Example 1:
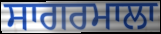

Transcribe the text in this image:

ਸਾਗਰਮਾਲਾ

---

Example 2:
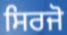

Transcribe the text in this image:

ਸਿਰਜੋ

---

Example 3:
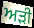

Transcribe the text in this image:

ਅੜੀ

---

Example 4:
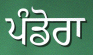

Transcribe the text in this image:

ਪੰਡੋਰਾ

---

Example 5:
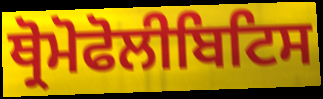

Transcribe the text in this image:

ਥ੍ਰੋਮੋਫੋਲੀਬਿਟਿਸ